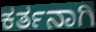
ಕರ್ತನಾಗಿ